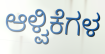
ಆಳ್ವಿಕೆಗಳ